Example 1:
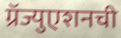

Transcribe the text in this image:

ग्रॅज्युएशनची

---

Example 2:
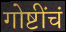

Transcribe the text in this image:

गोष्टींचं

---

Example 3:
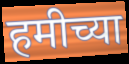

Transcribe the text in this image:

हमीच्या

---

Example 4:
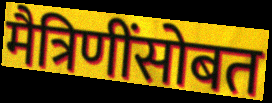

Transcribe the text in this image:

मैत्रिणींसोबत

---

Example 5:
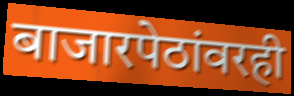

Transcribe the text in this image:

बाजारपेठांवरही